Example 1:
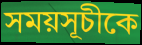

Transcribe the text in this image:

সময়সূচীকে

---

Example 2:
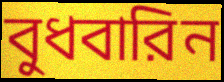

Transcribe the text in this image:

বুধবারিন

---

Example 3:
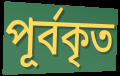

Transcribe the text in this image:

পূর্বকৃত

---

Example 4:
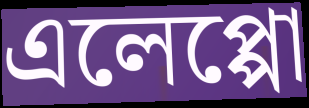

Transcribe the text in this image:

এলেপ্পো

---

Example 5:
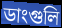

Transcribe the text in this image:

ডাংগুলি